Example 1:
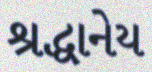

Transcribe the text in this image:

શ્રદ્ધાનેય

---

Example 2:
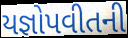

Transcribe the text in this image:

યજ્ઞોપવીતની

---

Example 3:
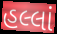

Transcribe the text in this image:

હલ્લાં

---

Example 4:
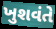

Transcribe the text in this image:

ખુશવંતે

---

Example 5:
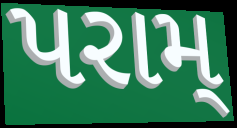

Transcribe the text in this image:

પરામ્